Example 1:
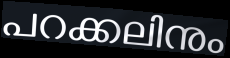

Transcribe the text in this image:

പറക്കലിനും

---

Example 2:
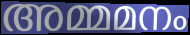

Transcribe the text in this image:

അമ്മമനം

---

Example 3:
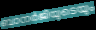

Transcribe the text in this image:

ബാനർജിയുടെയും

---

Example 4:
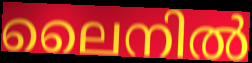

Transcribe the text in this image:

ലൈനിൽ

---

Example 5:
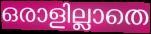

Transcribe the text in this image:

ഒരാളില്ലാതെ